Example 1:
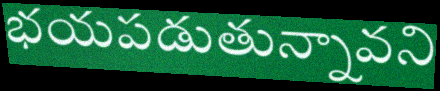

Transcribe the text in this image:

భయపడుతున్నావని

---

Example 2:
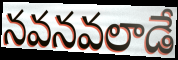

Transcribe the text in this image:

నవనవలాడే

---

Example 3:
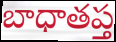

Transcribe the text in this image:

బాధాతప్త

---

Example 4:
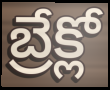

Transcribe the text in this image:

బ్రేక్లో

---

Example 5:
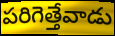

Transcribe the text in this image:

పరిగెత్తేవాడు